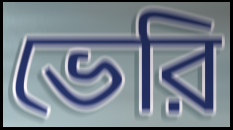
ভেরি